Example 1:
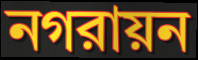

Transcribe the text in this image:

নগরায়ন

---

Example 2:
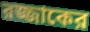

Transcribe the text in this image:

রজ্জাকের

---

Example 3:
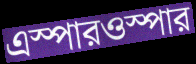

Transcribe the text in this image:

এস্পারওস্পার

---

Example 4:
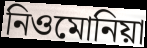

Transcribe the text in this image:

নিওমোনিয়া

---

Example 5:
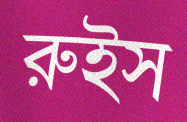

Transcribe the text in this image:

রুইস